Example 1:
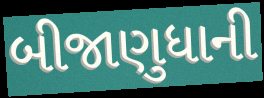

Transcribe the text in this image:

બીજાણુધાની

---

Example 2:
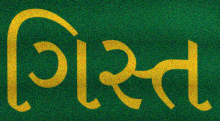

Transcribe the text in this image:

ગિસ્ત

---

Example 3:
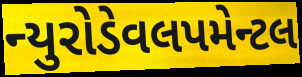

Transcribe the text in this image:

ન્યુરોડેવલપમેન્ટલ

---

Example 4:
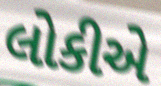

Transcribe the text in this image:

લોકીએ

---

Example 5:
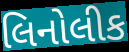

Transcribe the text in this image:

લિનોલીક